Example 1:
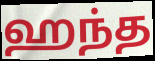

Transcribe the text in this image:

ஹந்த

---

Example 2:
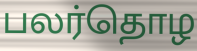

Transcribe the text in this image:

பலர்தொழ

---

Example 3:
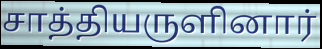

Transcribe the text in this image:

சாத்தியருளினார்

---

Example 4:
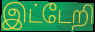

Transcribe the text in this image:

இட்டேறி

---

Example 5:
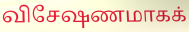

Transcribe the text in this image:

விசேஷணமாகக்